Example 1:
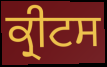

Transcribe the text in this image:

ਕ੍ਰੀਟਸ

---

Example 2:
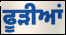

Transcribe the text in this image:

ਫੂੜੀਆਂ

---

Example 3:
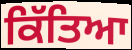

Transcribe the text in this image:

ਕਿੱਤਿਆ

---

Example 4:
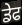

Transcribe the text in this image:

ਡੇਫ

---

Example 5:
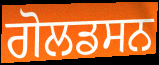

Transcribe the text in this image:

ਗੋਲਡਸਨ